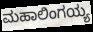
ಮಹಾಲಿಂಗಯ್ಯ